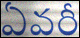
ఏవరీ